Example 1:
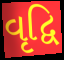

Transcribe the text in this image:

વૃદ્વિ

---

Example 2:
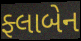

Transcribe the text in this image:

ફ્લાબેન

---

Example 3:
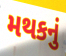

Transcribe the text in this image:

મથકનું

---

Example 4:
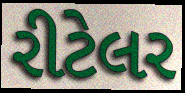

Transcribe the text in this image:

રીટેલર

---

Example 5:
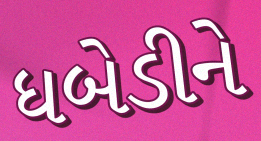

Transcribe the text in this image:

ધબેડીને